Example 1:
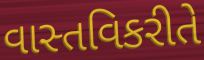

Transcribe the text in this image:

વાસ્તવિકરીતે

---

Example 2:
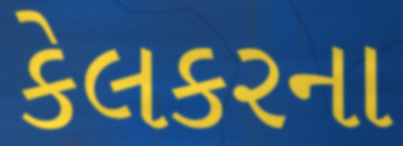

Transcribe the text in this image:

કેલકરના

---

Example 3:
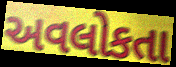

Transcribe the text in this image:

અવલોકતા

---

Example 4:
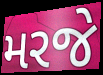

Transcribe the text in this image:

મરજે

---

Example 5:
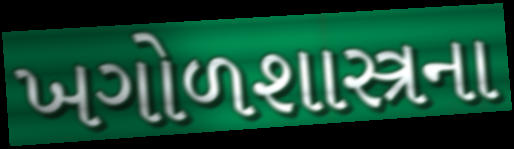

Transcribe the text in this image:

ખગોળશાસ્ત્રના